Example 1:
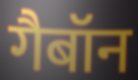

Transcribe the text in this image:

गैबॉन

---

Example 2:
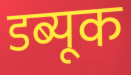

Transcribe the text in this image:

डब्यूक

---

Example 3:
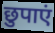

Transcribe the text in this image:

छुपाएं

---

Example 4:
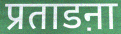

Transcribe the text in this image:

प्रताडऩा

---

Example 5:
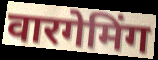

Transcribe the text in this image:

वारगेमिंग